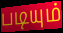
படியும்